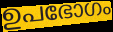
ഉപഭോഗം